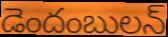
డెందంబులన్